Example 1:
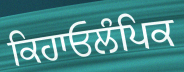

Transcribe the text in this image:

ਕਿਹਾਓਲੰਪਿਕ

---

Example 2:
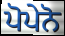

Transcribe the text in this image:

ਪੋਪੇਨੋ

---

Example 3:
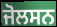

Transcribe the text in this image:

ਜੋਲਸਨ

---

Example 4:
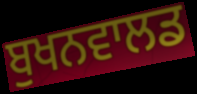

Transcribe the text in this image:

ਬੁਖਨਵਾਲਡ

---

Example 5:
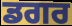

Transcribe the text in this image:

ਡਗਰ